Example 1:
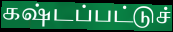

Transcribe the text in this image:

கஷ்டப்பட்டுச்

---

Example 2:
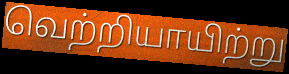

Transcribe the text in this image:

வெற்றியாயிற்று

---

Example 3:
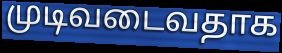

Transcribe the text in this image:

முடிவடைவதாக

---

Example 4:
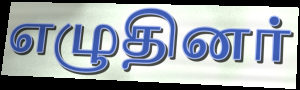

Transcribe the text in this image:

எழுதினர்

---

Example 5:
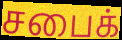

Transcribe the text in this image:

சபைக்